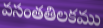
వసంతతిలకము